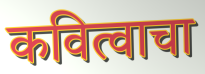
कवित्वाचा